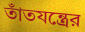
তাঁতযন্ত্রের